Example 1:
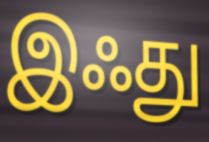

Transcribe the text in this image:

இஃது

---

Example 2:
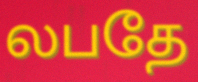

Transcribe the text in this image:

லபதே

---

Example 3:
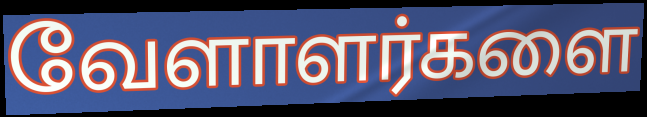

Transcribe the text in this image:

வேளாளர்களை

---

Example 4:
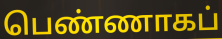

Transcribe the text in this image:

பெண்ணாகப்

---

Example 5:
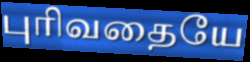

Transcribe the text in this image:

புரிவதையே